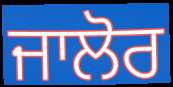
ਜਾਲੋਰ